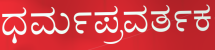
ಧರ್ಮಪ್ರವರ್ತಕ